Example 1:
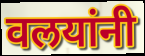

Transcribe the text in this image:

वलयांनी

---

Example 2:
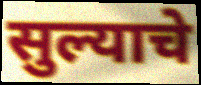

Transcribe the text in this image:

सुल्याचे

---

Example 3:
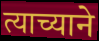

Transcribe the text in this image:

त्याच्याने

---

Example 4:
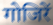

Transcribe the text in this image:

गोजिरें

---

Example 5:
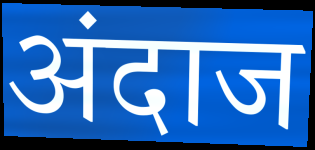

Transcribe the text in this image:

अंदाज